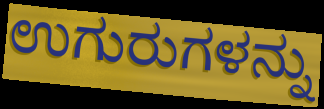
ಉಗುರುಗಳನ್ನು